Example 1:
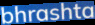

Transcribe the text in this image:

bhrashta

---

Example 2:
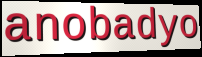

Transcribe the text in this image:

anobadyo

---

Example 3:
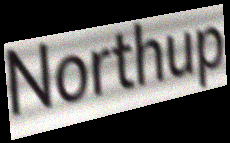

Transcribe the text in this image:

Northup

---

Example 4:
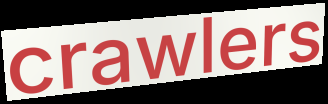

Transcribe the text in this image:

crawlers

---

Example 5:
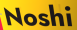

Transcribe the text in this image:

Noshi